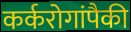
कर्करोगांपैकी